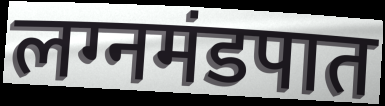
लग्नमंडपात